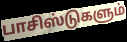
பாசிஸ்டுகளும்